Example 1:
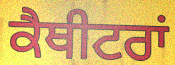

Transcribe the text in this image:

ਕੈਥੀਟਰਾਂ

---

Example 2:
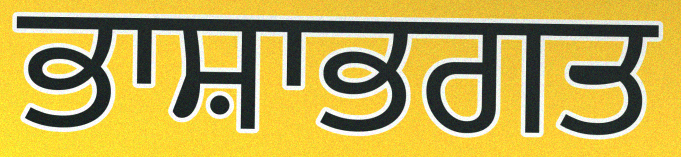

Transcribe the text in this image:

ਭਾਸ਼ਾਭਗਤ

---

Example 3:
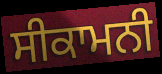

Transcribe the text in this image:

ਸੀਕਾਮਨੀ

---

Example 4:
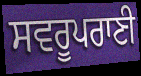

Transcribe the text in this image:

ਸਵਰੂਪਰਾਣੀ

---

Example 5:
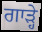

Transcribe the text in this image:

ਗਾੜ੍ਹੇ